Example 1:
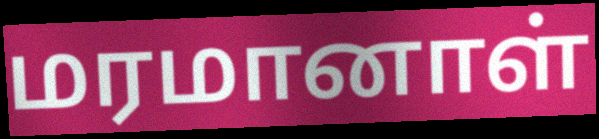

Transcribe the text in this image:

மரமானாள்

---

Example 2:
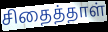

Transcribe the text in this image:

சிதைத்தாள்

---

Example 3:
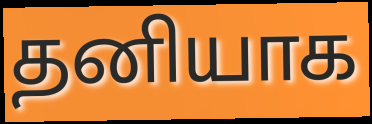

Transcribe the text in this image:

தனியாக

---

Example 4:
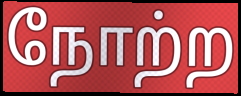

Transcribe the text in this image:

நோற்ற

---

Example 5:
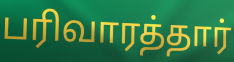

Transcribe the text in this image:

பரிவாரத்தார்